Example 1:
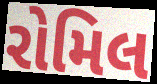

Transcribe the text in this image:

રોમિલ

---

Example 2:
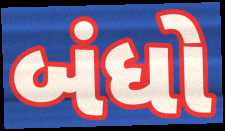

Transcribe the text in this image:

બંધો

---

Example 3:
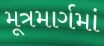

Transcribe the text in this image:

મૂત્રમાર્ગમાં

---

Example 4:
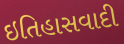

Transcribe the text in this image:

ઇતિહાસવાદી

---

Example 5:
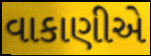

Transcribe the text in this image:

વાકાણીએ